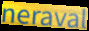
neraval